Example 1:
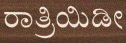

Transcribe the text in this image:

ರಾತ್ರಿಯಿಡೀ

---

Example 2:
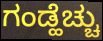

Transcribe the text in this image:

ಗಂಡ್ಹೆಚ್ಚು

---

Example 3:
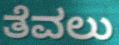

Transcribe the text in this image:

ತೆವಲು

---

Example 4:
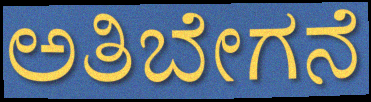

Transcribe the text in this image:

ಅತಿಬೇಗನೆ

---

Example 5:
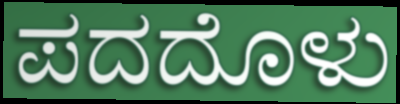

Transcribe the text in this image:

ಪದದೊಳು